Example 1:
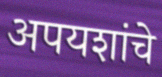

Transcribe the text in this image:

अपयशांचे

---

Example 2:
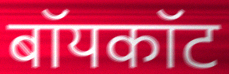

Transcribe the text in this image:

बॉयकॉट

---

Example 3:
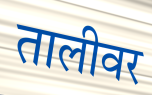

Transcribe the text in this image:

तालीवर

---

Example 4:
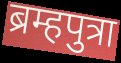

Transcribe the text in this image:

ब्रम्हपुत्रा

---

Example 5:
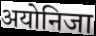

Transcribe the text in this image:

अयोनिजा